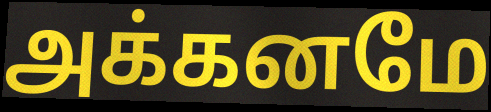
அக்கனமே